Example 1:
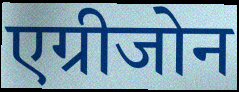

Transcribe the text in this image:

एग्रीजोन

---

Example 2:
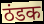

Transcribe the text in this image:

ठंडक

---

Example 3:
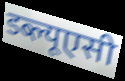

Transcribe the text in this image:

डब्ल्यूएसी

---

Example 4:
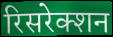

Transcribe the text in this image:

रिसरेक्शन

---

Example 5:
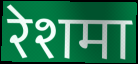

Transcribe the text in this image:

रेशमा